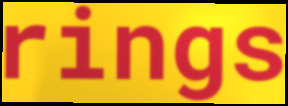
rings